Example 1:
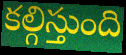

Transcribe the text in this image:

కల్గిస్తుంది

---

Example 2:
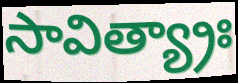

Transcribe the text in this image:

సావిత్య్రాః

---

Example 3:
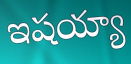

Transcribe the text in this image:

ఇషయ్యా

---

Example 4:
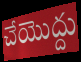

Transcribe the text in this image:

చేయొద్దు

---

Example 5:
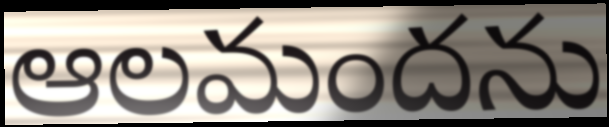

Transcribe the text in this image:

ఆలమందను